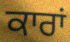
ਕਾਰਾਂ